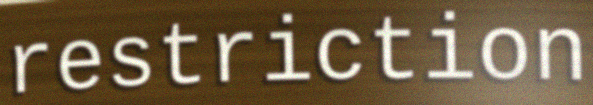
restriction